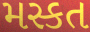
મસ્કત